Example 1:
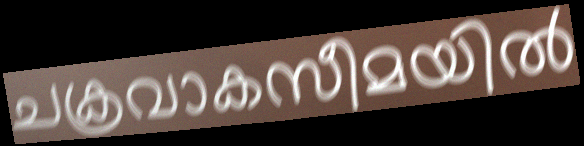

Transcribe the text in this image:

ചക്രവാകസീമയിൽ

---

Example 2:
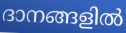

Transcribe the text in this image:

ദാനങ്ങളിൽ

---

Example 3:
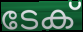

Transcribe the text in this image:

ടേക്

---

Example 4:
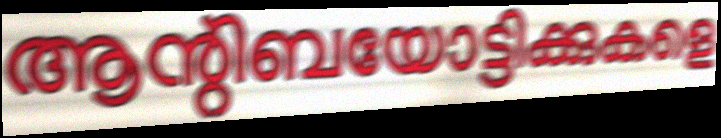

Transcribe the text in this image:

ആന്റിബയോട്ടിക്കുകളെ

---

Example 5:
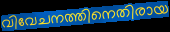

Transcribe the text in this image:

വിവേചനത്തിനെതിരായ